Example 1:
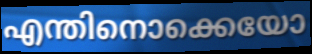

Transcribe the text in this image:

എന്തിനൊക്കെയോ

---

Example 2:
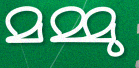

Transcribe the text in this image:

മമ്മു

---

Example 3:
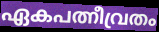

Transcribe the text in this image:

ഏകപത്നീവ്രതം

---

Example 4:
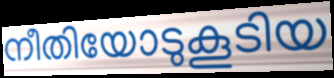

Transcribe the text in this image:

നീതിയോടുകൂടിയ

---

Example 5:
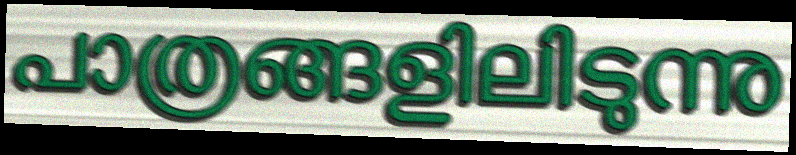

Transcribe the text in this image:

പാത്രങ്ങളിലിടുന്നു